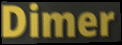
Dimer